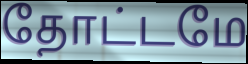
தோட்டமே